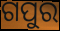
ଗପୁର